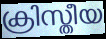
ക്രിസ്തീയ